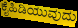
ಕೈಹಿಡಿಯುವುದು